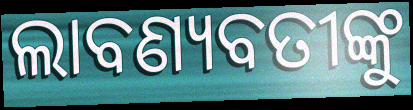
ଲାବଣ୍ୟବତୀଙ୍କୁ